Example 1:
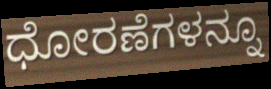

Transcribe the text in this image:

ಧೋರಣೆಗಳನ್ನೂ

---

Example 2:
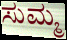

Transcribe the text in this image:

ಸುಮ್ಮ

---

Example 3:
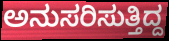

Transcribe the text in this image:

ಅನುಸರಿಸುತ್ತಿದ್ದ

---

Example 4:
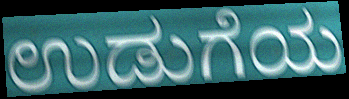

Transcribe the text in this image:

ಉಡುಗೆಯ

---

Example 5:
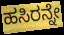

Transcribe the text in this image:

ಹಸಿರನ್ನೇ